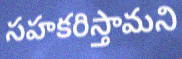
సహకరిస్తామని